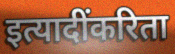
इत्यादींकरिता